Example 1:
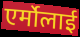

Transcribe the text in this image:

एर्मोलाई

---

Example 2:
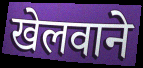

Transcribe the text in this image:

खेलवाने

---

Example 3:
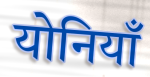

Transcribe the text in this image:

योनियाँ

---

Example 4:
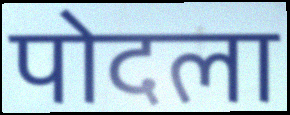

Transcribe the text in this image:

पोदला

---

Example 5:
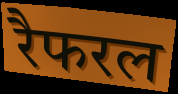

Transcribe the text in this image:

रैफरल